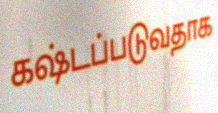
கஷ்டப்படுவதாக